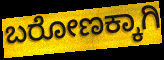
ಬರೋಣಕ್ಕಾಗಿ